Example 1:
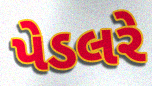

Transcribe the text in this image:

પેડલરે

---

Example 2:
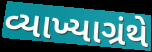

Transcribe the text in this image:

વ્યાખ્યાગ્રંથે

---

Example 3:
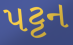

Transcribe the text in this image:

પટ્ટન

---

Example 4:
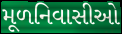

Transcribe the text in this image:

મૂળનિવાસીઓ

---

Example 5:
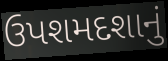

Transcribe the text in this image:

ઉપશમદશાનું